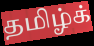
தமிழ்க்